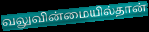
வலுவின்மையில்தான்